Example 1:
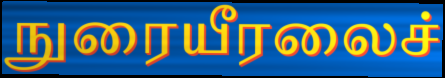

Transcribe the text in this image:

நுரையீரலைச்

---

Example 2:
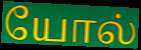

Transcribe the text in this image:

யோல்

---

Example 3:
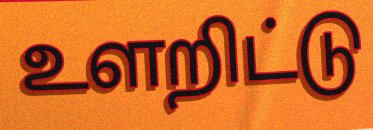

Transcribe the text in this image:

உளறிட்டு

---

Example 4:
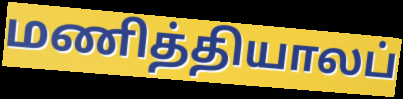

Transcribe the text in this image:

மணித்தியாலப்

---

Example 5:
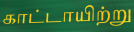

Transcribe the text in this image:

காட்டாயிற்று